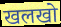
खलखो